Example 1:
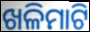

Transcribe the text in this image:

ଖଳିମାଟି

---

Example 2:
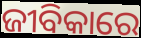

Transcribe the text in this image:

ଜୀବିକାରେ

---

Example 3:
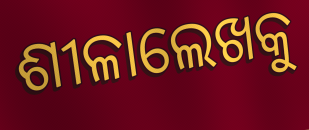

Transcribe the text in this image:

ଶୀଳାଲେଖକୁ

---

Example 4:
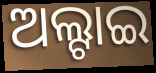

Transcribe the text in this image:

ଅଲ୍ଟାଇ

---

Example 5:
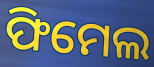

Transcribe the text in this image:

ଫିମେଲ